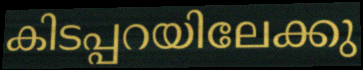
കിടപ്പറയിലേക്കു